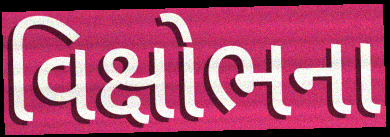
વિક્ષોભના